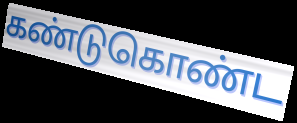
கண்டுகொண்ட